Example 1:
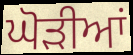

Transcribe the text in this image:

ਘੋੜੀਆਂ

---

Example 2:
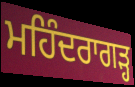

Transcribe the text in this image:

ਮਹਿੰਦਰਾਗੜ੍ਹ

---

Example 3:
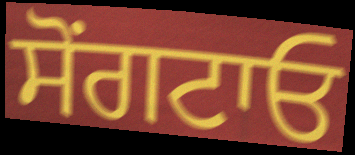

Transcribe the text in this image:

ਸੋਂਗਟਾਓ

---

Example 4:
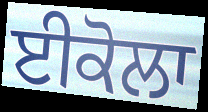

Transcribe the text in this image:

ਈਕੋਲਾ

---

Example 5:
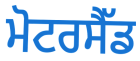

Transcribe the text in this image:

ਮੋਟਰਸੈੱਡ